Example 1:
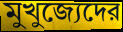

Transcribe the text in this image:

মুখুজ্যেদের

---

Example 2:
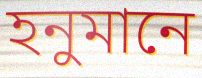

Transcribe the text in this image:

হনুমানে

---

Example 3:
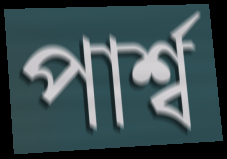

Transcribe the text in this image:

পার্শ্ব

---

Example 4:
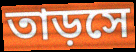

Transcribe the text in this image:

তাড়সে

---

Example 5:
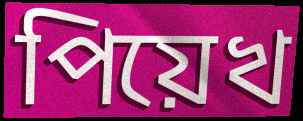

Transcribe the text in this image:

পিয়েখ